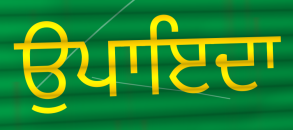
ਉਪਾਇਦਾ